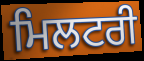
ਮਿਲਟਰੀ